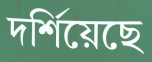
দর্শিয়েছে